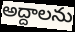
అద్దాలను